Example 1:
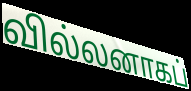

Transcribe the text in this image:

வில்லனாகப்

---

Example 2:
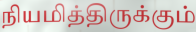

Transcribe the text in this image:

நியமித்திருக்கும்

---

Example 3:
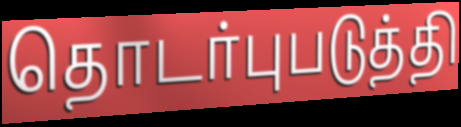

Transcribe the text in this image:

தொடர்புபடுத்தி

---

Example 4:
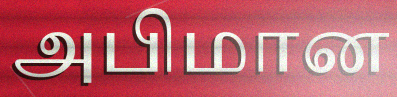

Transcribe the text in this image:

அபிமான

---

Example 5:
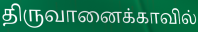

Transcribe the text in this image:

திருவானைக்காவில்